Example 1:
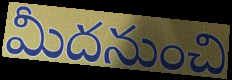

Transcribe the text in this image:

మీదనుంచి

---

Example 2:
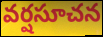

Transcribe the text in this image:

వర్షసూచన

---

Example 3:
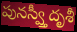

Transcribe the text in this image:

పునస్వ్తీదృశీ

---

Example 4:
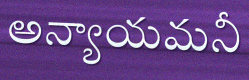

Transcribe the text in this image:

అన్యాయమనీ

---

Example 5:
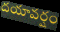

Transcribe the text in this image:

దయావర్షం